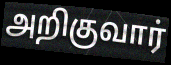
அறிகுவார்